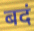
बदं